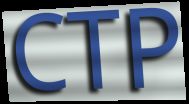
CTP